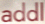
addl